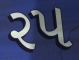
રપ